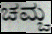
ಚಮ್ಚ